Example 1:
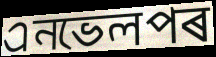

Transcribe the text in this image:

এনভেলপৰ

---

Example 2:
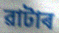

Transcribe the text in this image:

ৱাটাৰ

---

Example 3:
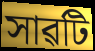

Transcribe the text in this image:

সাৱটি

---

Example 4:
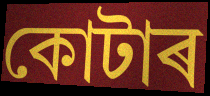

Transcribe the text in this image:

কোটাৰ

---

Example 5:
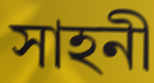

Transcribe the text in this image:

সাহনী